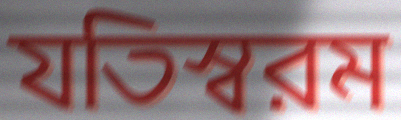
যতিস্বরম